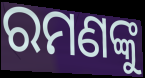
ରମଣଙ୍କୁ